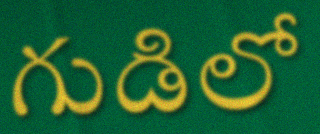
గుడిలో